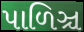
પાળિઞ્ચ